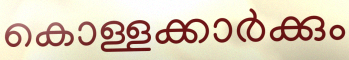
കൊള്ളക്കാർക്കും